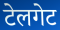
टेलगेट